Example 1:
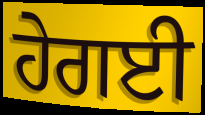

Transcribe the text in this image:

ਹੇਗਈ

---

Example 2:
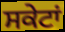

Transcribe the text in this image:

ਸਕੇਟਾਂ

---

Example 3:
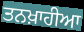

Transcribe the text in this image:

ਤਨਖ਼ਾਹੀਆ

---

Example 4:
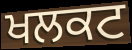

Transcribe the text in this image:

ਖਲਕਟ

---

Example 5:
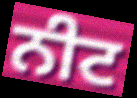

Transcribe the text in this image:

ਨੀਟ